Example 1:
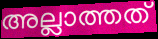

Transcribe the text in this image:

അല്ലാത്തത്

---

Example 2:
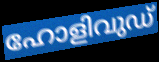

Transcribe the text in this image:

ഹോളിവുഡ്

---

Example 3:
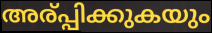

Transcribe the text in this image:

അര്പ്പിക്കുകയും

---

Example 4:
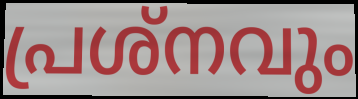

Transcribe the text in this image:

പ്രശ്നവും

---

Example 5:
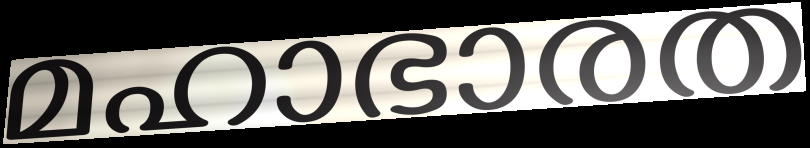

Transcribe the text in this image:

മഹാഭാരത